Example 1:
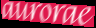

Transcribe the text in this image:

aurorae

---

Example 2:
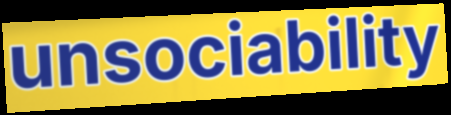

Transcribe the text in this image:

unsociability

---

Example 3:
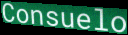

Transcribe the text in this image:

Consuelo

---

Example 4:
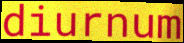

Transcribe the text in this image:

diurnum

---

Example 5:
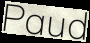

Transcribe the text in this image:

Paud